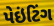
પેઇંટિંગ